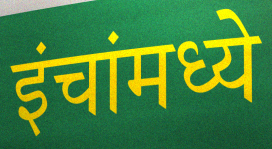
इंचांमध्ये